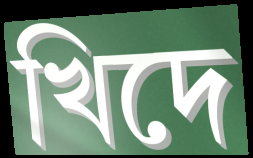
খিদে